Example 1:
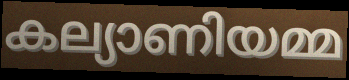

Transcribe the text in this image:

കല്യാണിയമ്മ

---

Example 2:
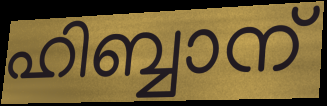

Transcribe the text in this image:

ഹിബ്ബാന്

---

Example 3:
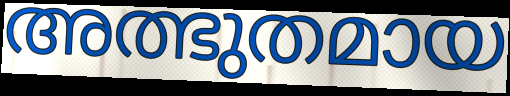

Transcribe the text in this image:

അത്ഭുതമായ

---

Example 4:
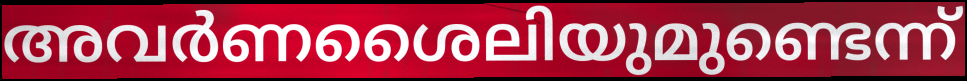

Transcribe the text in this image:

അവർണശൈലിയുമുണ്ടെന്ന്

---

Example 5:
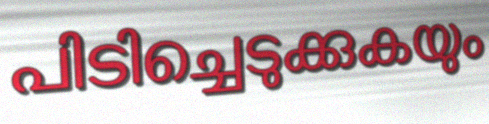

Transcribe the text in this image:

പിടിച്ചെടുക്കുകയും